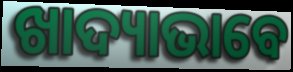
ଖାଦ୍ୟାଭାବେ